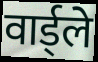
वार्ड्ले